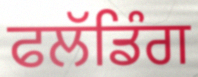
ਫਲੱਡਿੰਗ